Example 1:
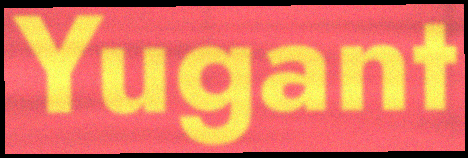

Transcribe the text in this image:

Yugant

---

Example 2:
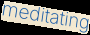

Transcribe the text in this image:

meditating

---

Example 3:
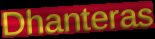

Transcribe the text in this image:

Dhanteras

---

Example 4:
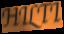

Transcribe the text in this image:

HILTI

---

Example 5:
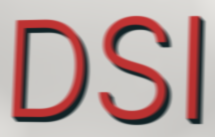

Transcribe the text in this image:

DSI